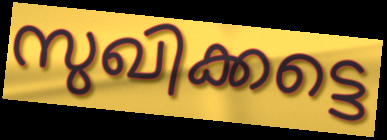
സുഖിക്കട്ടെ